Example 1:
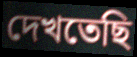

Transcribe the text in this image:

দেখতেছি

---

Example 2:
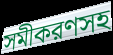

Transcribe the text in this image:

সমীকরণসহ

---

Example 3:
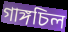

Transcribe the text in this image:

গাঙ্গচিল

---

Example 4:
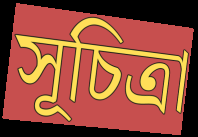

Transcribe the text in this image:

সূচিত্রা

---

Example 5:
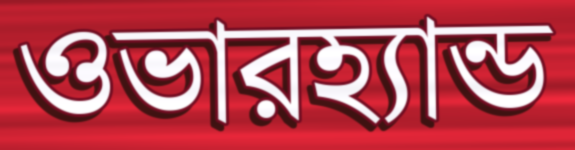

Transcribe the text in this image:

ওভারহ্যান্ড